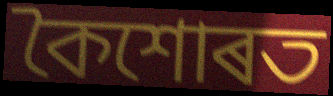
কৈশোৰত